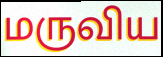
மருவிய